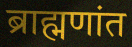
ब्राह्मणांत